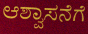
ಆಶ್ವಾಸನೆಗೆ